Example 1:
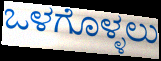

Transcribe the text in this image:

ಒಳಗೊಳ್ಳಲು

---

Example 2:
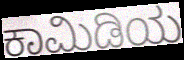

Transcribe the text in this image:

ಕಾಮಿಡಿಯ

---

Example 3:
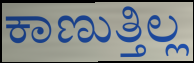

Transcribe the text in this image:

ಕಾಣುತ್ತಿಲ್ಲ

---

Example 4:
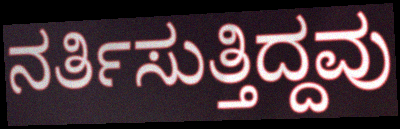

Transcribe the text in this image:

ನರ್ತಿಸುತ್ತಿದ್ದವು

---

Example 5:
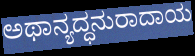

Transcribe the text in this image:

ಅಥಾನ್ಯದ್ಧನುರಾದಾಯ